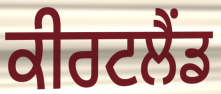
ਕੀਰਟਲੈਂਡ